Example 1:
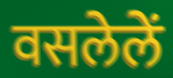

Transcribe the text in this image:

वसलेलें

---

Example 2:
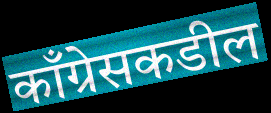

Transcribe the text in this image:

काँग्रेसकडील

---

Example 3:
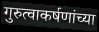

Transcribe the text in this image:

गुरुत्वाकर्षणांच्या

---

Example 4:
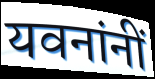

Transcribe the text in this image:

यवनांनीं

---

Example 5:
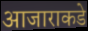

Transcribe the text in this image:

आजाराकडे